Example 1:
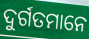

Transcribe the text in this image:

ଦୁର୍ଗତମାନେ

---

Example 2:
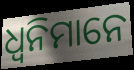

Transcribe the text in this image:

ଧ୍ୱନିମାନେ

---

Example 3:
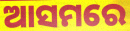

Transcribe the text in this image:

ଆସମରେ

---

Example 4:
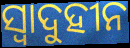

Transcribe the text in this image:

ସ୍ୱାଦୁହୀନ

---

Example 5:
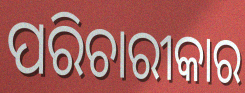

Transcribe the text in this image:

ପରିଚାରୀକାର